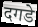
दगडे